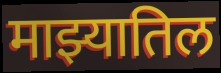
माझ्यातिल